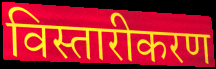
विस्तारीकरण